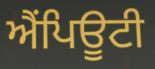
ਐਂਪਿਊਟੀ